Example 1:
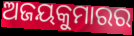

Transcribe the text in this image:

ଅଜୟକୁମାରର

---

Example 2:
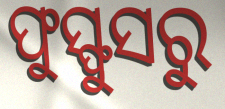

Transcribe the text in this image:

ଫୁସ୍ଫୁସରୁ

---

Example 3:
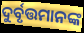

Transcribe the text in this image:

ଦୁର୍ବୃତ୍ତମାନଙ୍କ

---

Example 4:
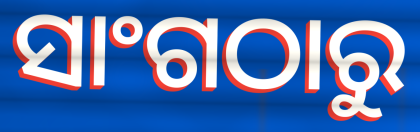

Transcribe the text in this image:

ସାଂଗଠାରୁ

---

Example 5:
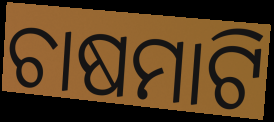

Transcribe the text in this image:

ଚାଷମାଟି